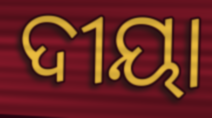
ଦୀୟା